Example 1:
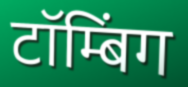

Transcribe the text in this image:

टॉम्बिंग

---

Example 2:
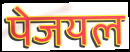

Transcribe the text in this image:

पेजयल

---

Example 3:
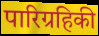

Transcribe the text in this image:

पारिग्रहिकी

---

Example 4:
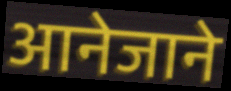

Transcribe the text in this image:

आनेजाने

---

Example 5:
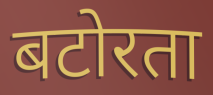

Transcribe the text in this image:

बटोरता